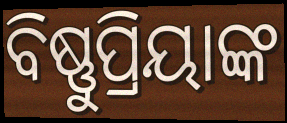
ବିଷ୍ଣୁପ୍ରିୟାଙ୍କ